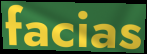
facias